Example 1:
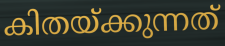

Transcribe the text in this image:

കിതയ്ക്കുന്നത്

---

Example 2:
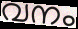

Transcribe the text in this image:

വനം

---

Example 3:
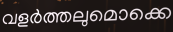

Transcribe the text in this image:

വളർത്തലുമൊക്കെ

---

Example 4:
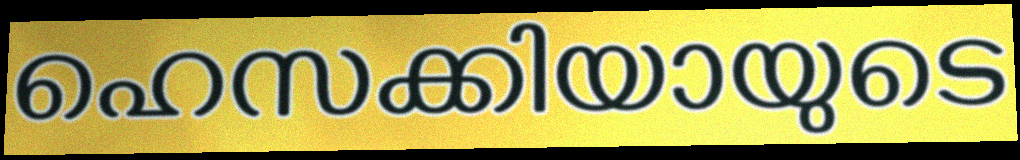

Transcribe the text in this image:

ഹെസക്കിയായുടെ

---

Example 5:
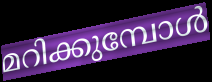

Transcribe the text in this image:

മറിക്കുമ്പോൾ